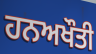
ਹਨਅਖੌਤੀ